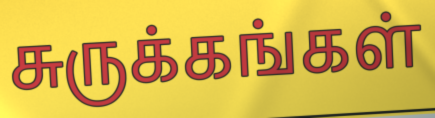
சுருக்கங்கள்